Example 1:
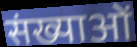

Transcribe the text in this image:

संख्याओं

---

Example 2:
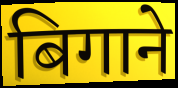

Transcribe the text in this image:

बिगाने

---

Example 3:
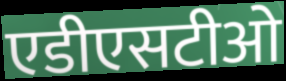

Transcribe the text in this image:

एडीएसटीओ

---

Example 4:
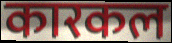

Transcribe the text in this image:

कारकल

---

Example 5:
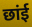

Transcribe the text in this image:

छांई